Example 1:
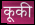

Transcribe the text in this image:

कूकी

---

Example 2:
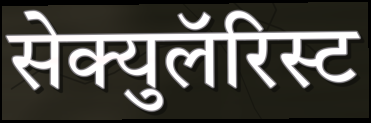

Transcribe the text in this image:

सेक्युलॅरिस्ट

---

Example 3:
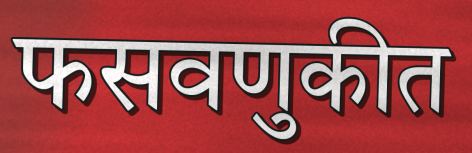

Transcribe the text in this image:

फसवणुकीत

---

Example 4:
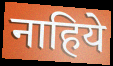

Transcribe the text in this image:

नाहिये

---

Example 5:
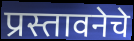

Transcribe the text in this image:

प्रस्तावनेचे